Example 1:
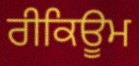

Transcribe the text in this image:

ਰੀਕਿਊਮ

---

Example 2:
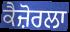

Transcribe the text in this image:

ਕੈਜ਼ੋਰਲਾ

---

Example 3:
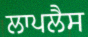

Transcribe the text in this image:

ਲਾਪਲੈਸ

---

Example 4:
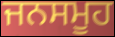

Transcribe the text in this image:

ਜਨਸਮੂਹ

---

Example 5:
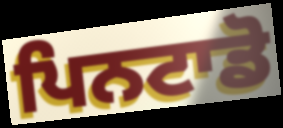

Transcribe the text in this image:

ਪਿਨਟਾਡੋ